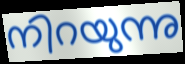
നിറയുന്നു